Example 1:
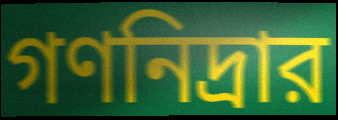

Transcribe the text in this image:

গণনিদ্রার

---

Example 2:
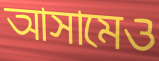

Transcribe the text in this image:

আসামেও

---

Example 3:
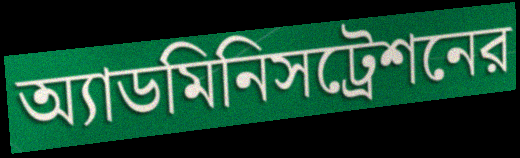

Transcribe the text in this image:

অ্যাডমিনিসট্রেশনের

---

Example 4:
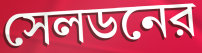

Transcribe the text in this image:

সেলডনের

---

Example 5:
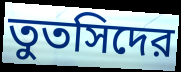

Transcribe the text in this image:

তুতসিদের